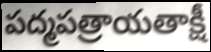
పద్మపత్రాయతాక్షీ